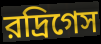
রদ্রিগেস